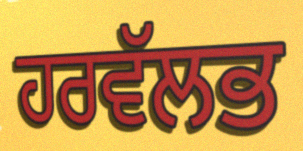
ਹਰਵੱਲਭ